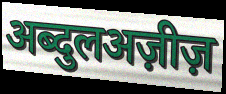
अब्दुलअज़ीज़